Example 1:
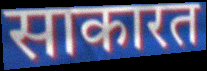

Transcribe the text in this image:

साकारत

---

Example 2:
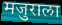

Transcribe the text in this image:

मजुराला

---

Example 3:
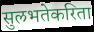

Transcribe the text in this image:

सुलभतेकरिता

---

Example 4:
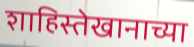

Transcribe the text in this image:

शाहिस्तेखानाच्या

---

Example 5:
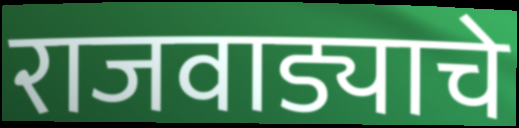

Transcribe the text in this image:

राजवाड्याचे